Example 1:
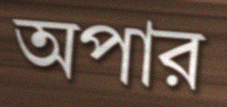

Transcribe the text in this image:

অপার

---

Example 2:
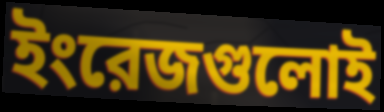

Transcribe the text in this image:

ইংরেজগুলোই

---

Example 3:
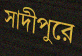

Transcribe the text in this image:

সাদীপুরে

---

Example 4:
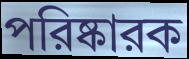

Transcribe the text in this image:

পরিষ্কারক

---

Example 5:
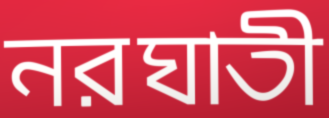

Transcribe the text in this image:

নরঘাতী